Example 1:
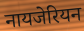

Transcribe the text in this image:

नायजेरियन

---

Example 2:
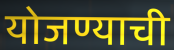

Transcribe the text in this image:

योजण्याची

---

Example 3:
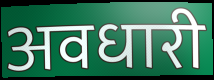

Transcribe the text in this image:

अवधारी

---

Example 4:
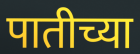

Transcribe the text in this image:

पातीच्या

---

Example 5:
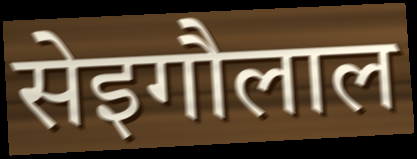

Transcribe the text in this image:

सेइगौलाल